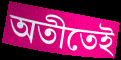
অতীতেই